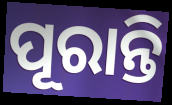
ପୂରାନ୍ତି